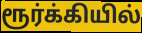
ரூர்க்கியில்